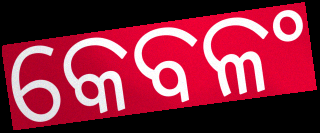
କେବଳଂ